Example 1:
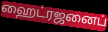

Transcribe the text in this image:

ஹைட்ரஜனைப்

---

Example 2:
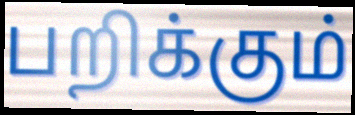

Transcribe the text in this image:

பறிக்கும்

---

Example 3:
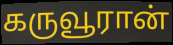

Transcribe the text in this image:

கருவூரான்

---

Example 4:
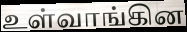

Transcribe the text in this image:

உள்வாங்கின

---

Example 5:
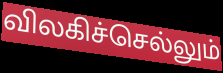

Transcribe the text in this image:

விலகிச்செல்லும்